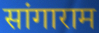
सांगाराम